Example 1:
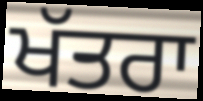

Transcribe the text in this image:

ਖੱਤਰਾ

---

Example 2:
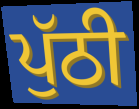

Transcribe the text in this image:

ਪੁੱਠੀ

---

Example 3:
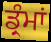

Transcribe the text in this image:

ਡ੍ਰੰਮਾਂ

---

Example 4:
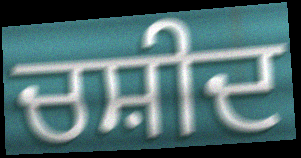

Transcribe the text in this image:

ਚਸ਼ੀਦ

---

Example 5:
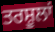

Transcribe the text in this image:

ਤਰਸ਼ੂਲਾਂ